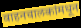
वाहनचालकांमधून